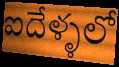
ఐదేళ్ళలో